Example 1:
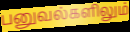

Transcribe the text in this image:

பனுவல்களிலும்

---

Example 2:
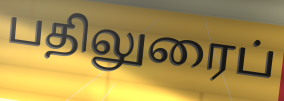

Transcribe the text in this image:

பதிலுரைப்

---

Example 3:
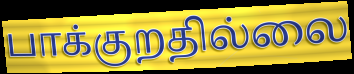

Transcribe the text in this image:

பாக்குறதில்லை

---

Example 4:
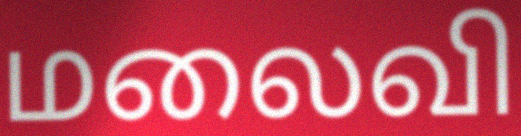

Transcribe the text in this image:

மலைவி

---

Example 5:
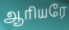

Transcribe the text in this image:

ஆரியரே